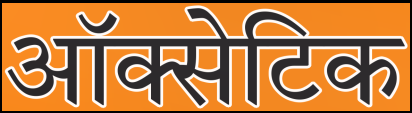
ऑक्सेटिक